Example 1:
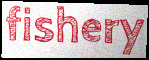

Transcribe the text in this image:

fishery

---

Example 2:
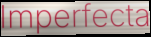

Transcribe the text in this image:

Imperfecta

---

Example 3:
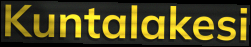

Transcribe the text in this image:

Kuntalakesi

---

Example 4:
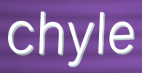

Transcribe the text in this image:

chyle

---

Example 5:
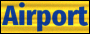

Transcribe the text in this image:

Airport